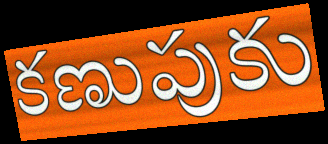
కణుపుకు